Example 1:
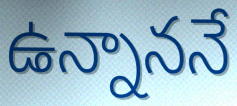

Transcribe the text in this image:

ఉన్నాననే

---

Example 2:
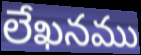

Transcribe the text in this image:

లేఖనము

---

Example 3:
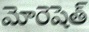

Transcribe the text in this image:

మోరెషెత్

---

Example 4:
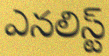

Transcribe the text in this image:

ఎనలిస్ట్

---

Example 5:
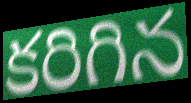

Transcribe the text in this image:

కరిగిన